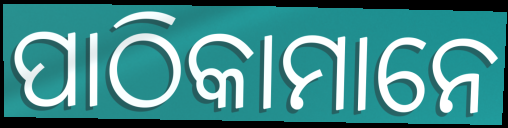
ପାଠିକାମାନେ